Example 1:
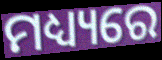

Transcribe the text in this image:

ମଧ୍ୟ୍ୟରେ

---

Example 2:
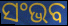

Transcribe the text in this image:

ସଂଭବ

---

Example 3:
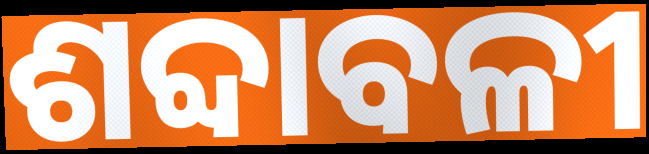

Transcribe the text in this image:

ଶବ୍ଦାବଳୀ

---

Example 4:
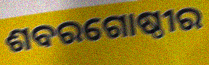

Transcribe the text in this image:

ଶବରଗୋଷ୍ଠୀର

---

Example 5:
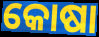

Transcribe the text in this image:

କୋଷା